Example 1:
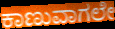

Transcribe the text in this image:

ಕಾಣುವಾಗಲೇ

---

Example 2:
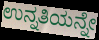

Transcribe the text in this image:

ಉನ್ನತಿಯನ್ನೇ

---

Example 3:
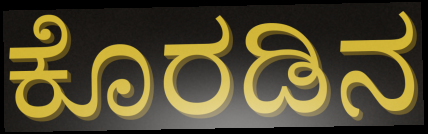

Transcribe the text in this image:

ಕೊರಡಿನ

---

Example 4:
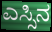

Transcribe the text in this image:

ಎಸ್ಸಿನ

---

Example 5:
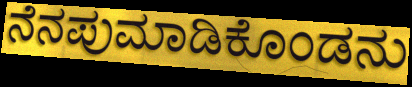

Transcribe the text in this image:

ನೆನಪುಮಾಡಿಕೊಂಡನು